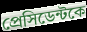
প্রেসিডেন্টকে